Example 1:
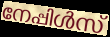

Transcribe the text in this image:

നേപ്പിൾസ്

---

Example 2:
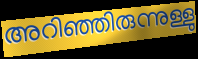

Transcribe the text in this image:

അറിഞ്ഞിരുന്നുള്ളു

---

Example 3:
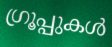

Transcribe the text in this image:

ഗ്രൂപ്പുകൾ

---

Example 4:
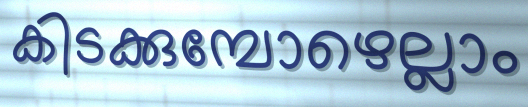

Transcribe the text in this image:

കിടക്കുമ്പോഴെല്ലാം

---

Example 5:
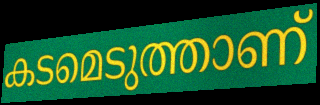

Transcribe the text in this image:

കടമെടുത്താണ്